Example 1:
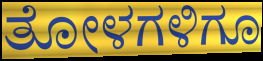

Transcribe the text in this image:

ತೋಳಗಳಿಗೂ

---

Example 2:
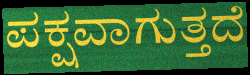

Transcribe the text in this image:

ಪಕ್ಷವಾಗುತ್ತದೆ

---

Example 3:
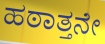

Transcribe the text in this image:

ಹಠಾತ್ತನೇ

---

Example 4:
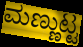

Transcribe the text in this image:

ಮಣ್ಣುಟ್ಟ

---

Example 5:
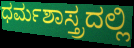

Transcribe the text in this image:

ಧರ್ಮಶಾಸ್ತ್ರದಲ್ಲಿ